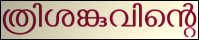
ത്രിശങ്കുവിന്റെ